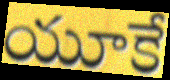
యూకే